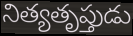
నిత్యతృప్తుడు